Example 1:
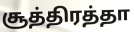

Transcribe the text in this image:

சூத்திரத்தா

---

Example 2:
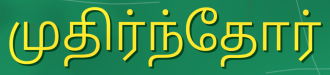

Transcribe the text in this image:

முதிர்ந்தோர்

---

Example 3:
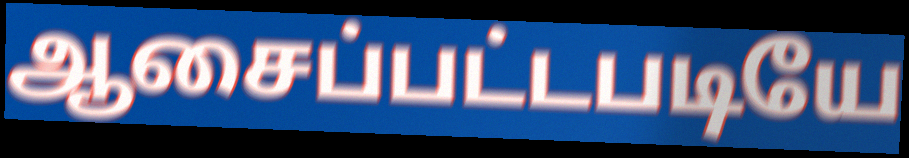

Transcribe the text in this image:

ஆசைப்பட்டபடியே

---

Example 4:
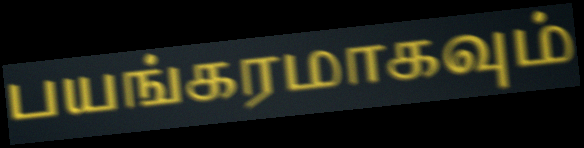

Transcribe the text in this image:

பயங்கரமாகவும்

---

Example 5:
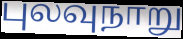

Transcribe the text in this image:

புலவுநாறு